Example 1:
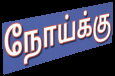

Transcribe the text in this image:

நோய்க்கு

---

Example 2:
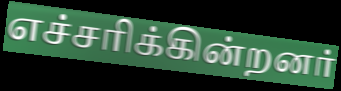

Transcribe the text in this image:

எச்சரிக்கின்றனர்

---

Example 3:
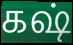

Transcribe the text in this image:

கஷ்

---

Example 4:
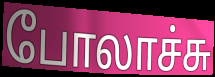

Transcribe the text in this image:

போலாச்சு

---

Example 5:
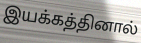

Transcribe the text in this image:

இயக்கத்தினால்